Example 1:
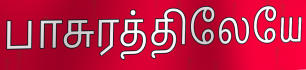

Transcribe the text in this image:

பாசுரத்திலேயே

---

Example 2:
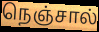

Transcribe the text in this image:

நெஞ்சால்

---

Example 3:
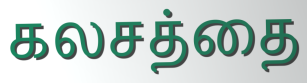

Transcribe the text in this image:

கலசத்தை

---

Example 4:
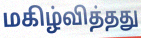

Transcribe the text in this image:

மகிழ்வித்தது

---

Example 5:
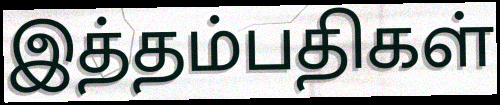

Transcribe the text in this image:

இத்தம்பதிகள்